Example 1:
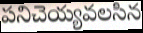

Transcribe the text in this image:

పనిచెయ్యవలసిన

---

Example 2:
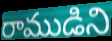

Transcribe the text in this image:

రాముడిని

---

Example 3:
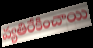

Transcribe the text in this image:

వ్యతిరేకించాయి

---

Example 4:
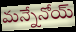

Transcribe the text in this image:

మన్నేనోయ్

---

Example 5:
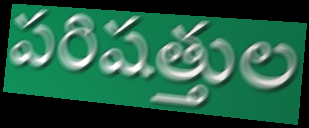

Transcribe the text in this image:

పరిషత్తుల